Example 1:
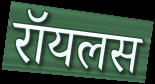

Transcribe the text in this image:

रॉयलस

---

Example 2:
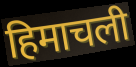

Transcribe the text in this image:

हिमाचली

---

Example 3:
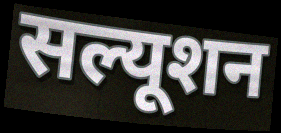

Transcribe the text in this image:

सल्यूशन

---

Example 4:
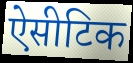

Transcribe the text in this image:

ऐसीटिक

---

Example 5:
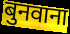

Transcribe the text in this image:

बुनवाना